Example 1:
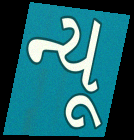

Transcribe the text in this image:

ન્યૂ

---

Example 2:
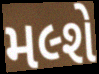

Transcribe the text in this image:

મલ્શે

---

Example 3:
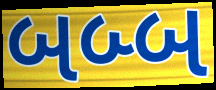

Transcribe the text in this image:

બબ્બ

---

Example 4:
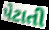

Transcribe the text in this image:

પેટાતી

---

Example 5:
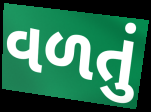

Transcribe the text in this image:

વળતું